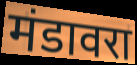
मंडावरा